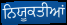
ਨਿਯੂਕਤੀਆਂ